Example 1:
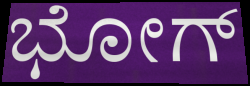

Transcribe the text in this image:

ಭೋಗ್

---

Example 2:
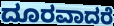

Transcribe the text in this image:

ದೂರವಾದರೆ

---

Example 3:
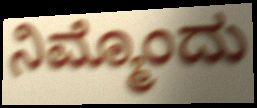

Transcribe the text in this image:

ನಿಮ್ಮೊಂದು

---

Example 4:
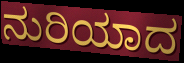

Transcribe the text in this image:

ನುರಿಯಾದ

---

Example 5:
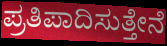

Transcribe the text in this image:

ಪ್ರತಿಪಾದಿಸುತ್ತೇನೆ